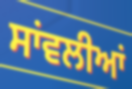
ਸਾਂਵਲੀਆਂ